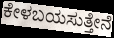
ಕೇಳಬಯಸುತ್ತೇನೆ